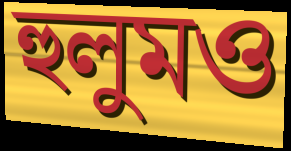
হুলুমও